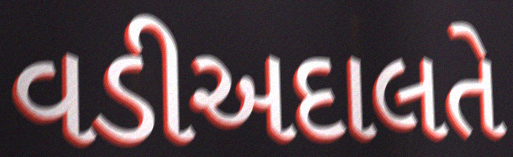
વડીઅદાલતે